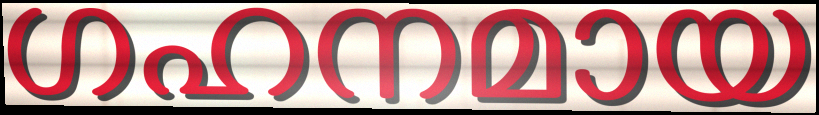
ഗഹനമായ